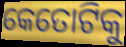
କେତୋଟିକୁ